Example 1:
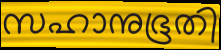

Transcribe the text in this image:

സഹാനുഭൂതി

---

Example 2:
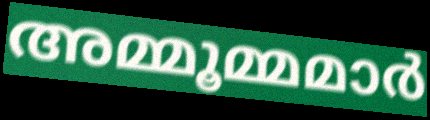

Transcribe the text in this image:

അമ്മൂമ്മമാർ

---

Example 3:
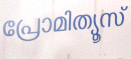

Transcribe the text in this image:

പ്രോമിത്യൂസ്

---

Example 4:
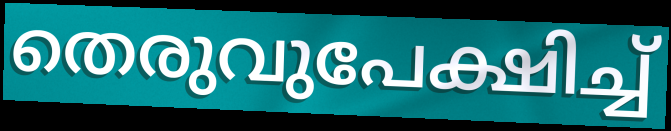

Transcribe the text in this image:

തെരുവുപേക്ഷിച്ച്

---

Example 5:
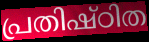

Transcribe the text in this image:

പ്രതിഷ്ഠിത